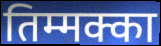
तिम्मक्का